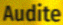
Audite